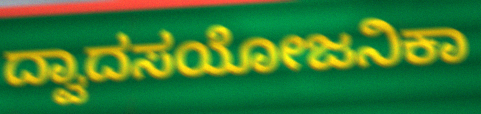
ದ್ವಾದಸಯೋಜನಿಕಾ